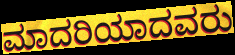
ಮಾದರಿಯಾದವರು